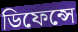
ডিফেন্সে